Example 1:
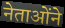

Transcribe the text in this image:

नेताओंने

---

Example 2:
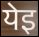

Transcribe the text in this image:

येइ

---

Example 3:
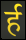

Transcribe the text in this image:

र्ह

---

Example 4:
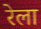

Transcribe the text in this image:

रेला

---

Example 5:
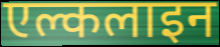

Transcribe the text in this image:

एल्कलाइन